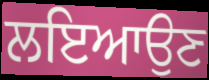
ਲਇਆਉਣ